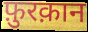
फ़ुरक़ान